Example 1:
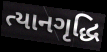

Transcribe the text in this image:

ત્યાનગૃદ્ધિ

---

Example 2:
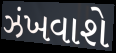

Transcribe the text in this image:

ઝંખવાશે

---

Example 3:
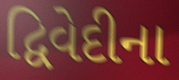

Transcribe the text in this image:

દ્વિવેદીના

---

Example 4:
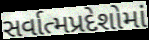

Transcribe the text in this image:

સર્વાત્મપ્રદેશોમાં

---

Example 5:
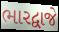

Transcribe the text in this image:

ભારદ્વાજે